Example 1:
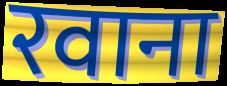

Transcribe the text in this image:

रवाना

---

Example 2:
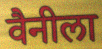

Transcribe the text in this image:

वैनीला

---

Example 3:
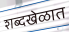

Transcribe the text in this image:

शब्दखेळात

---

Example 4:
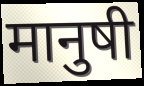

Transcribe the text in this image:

मानुषी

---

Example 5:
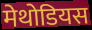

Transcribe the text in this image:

मेथोडियस